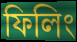
ফিলিং